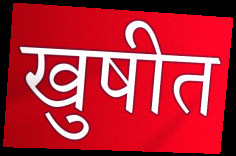
खुषीत